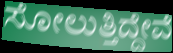
ಸೋಲುತ್ತಿದ್ದೇವೆ